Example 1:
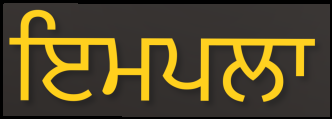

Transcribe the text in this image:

ਇਮਪਲਾ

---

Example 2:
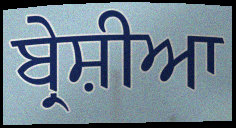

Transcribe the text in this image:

ਬ੍ਰੇਸ਼ੀਆ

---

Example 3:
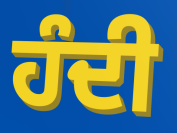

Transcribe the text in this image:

ਹੰਦੀ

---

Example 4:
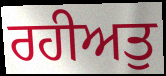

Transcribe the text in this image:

ਰਹੀਅਤੁ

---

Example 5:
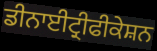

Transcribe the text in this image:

ਡੀਨਾਈਟ੍ਰੀਫੀਕੇਸ਼ਨ